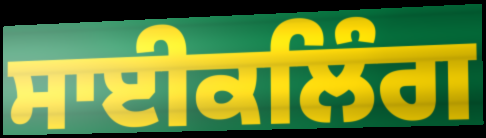
ਸਾਈਕਲਿੰਗ